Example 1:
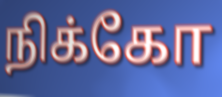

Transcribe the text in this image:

நிக்கோ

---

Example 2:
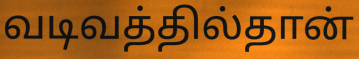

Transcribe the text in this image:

வடிவத்தில்தான்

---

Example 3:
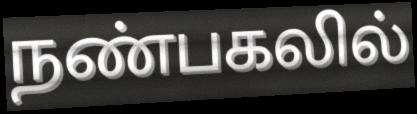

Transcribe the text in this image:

நண்பகலில்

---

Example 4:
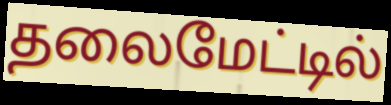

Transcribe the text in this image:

தலைமேட்டில்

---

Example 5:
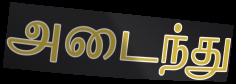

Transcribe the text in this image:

அடைந்து